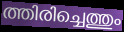
ത്തിരിച്ചെത്തും